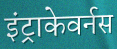
इंट्राकेवर्नस